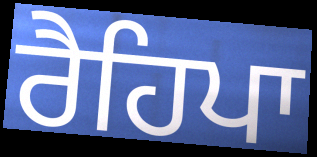
ਰੈਹਿਪਾ